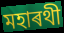
মহাৰথী